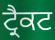
ਟ੍ਰੈਕਟ